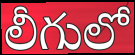
లీగులో